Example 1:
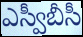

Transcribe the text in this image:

ఎస్వీబీసీ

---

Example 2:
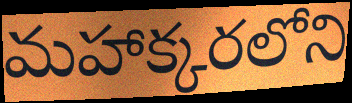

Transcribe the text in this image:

మహాక్కరలోని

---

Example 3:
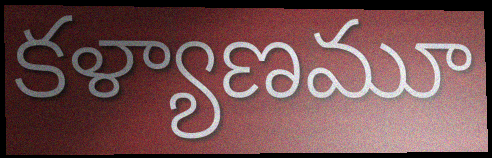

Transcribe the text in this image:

కళ్యాణమూ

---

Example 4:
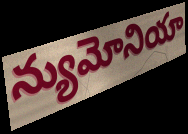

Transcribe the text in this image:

న్యుమోనియా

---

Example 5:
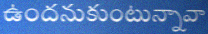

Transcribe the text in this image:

ఉందనుకుంటున్నావా